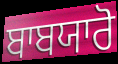
ਬਾਬਯਾਰੋ